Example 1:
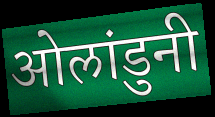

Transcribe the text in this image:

ओलांडुनी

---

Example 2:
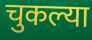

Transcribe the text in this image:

चुकल्या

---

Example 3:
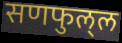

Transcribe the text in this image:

सणफुल्ल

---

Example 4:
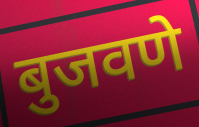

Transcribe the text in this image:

बुजवणे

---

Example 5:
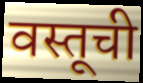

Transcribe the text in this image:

वस्तूची